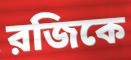
রজিকে